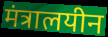
मंत्रालयीन